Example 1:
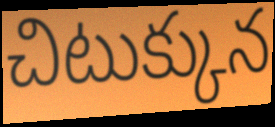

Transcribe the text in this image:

చిటుక్కున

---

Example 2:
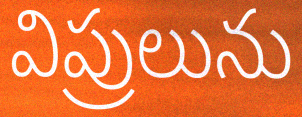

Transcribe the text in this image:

విప్రులును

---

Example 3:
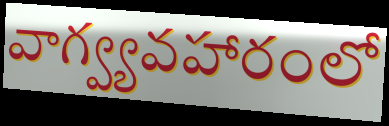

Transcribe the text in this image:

వాగ్వ్యవహారంలో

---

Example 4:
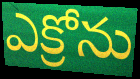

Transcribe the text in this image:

ఎక్రోను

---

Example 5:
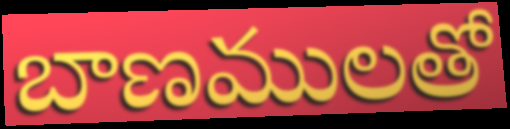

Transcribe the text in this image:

బాణములతో